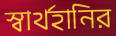
স্বার্থহানির